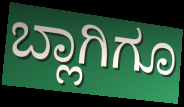
ಬ್ಲಾಗಿಗೂ